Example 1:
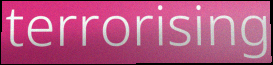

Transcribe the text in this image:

terrorising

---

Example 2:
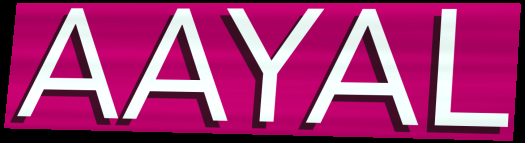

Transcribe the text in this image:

AAYAL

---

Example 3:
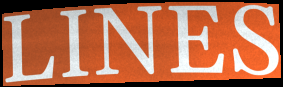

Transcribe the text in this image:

LINES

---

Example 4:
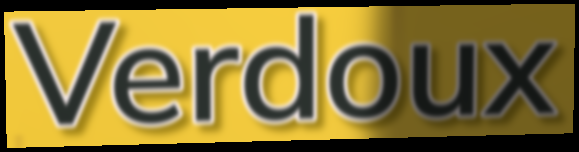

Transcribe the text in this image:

Verdoux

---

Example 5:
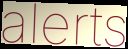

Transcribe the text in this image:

alerts